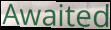
Awaited